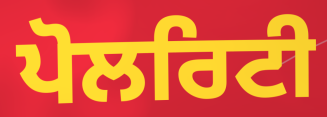
ਪੋਲਰਿਟੀ